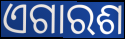
ଏଗାରଶ